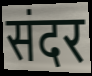
संदर